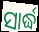
ସାର୍ଦ୍ଧ